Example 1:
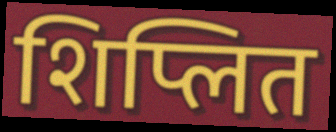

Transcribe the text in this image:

शिप्लित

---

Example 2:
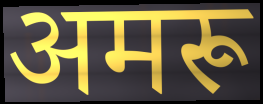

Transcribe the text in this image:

अमरू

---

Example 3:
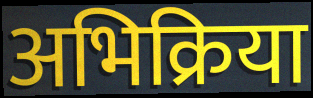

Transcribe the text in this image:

अभिक्रिया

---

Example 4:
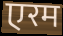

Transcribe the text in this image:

एरम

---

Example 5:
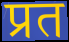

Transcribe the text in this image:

प्रत